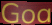
Goa